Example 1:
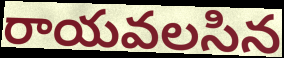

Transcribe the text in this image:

రాయవలసిన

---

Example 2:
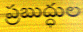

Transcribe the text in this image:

ప్రబుద్ధుల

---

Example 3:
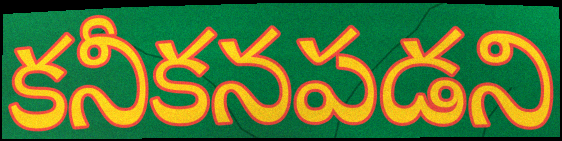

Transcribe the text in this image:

కనీకనపడని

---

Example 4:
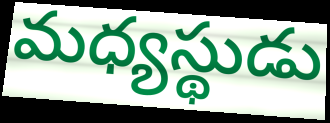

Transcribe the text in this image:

మధ్యస్థుడు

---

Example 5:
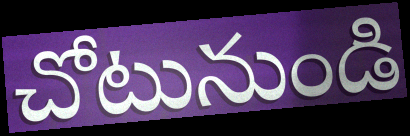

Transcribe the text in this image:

చోటునుండి